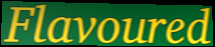
Flavoured